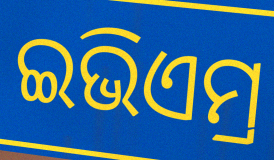
ଇଭିଏମ୍ର